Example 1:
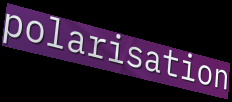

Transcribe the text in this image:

polarisation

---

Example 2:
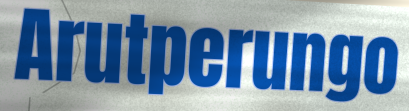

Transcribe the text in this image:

Arutperungo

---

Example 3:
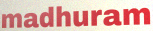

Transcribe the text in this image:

madhuram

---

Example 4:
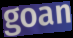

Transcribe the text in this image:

goan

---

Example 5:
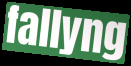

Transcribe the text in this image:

fallyng